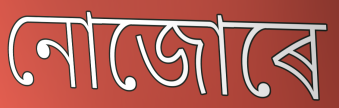
নোজোৰে